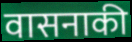
वासनाकी